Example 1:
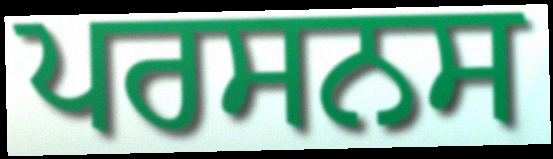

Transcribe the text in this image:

ਪਰਸਨਸ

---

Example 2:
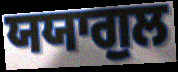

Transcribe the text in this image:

ਯਯਾਗੁਲ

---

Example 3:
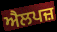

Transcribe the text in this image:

ਐਲਪਜ਼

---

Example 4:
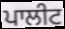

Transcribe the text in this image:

ਪਾਲੀਟ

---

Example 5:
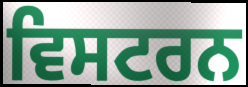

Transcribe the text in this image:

ਵਿਸਟਰਨ